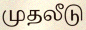
முதலீடு